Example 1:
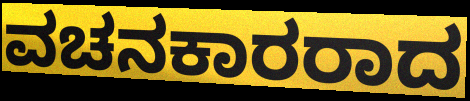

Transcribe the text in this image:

ವಚನಕಾರರಾದ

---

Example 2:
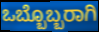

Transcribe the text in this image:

ಒಬ್ಬೊಬ್ಬರಾಗಿ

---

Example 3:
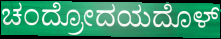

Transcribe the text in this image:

ಚಂದ್ರೋದಯದೊಳ್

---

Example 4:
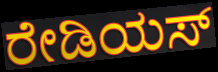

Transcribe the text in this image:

ರೇಡಿಯಸ್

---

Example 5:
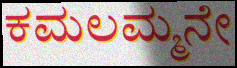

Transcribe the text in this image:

ಕಮಲಮ್ಮನೇ